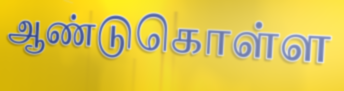
ஆண்டுகொள்ள